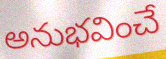
అనుభవించే